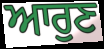
ਆਰੁਣ